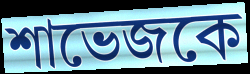
শাভেজকে